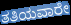
ತತಿಯವಾರೇ